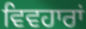
ਵਿਵਹਾਰਾਂ